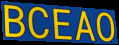
BCEAO